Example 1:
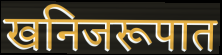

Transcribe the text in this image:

खनिजरूपात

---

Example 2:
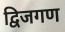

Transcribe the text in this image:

द्विजगण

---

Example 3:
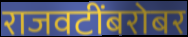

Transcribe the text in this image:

राजवटींबरोबर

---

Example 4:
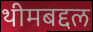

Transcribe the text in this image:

थीमबद्दल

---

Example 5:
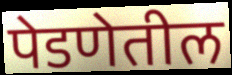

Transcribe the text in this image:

पेडणेतील